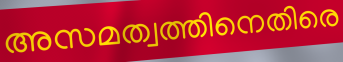
അസമത്വത്തിനെതിരെ